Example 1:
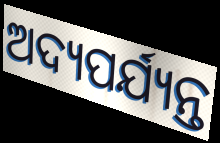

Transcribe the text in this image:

ଅଦ୍ୟପର୍ଯ୍ୟନ୍ତ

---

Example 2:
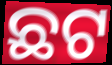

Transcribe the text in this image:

ଛଟ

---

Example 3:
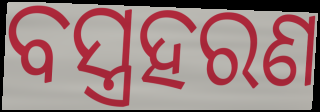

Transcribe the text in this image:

ବସ୍ତ୍ରହରଣ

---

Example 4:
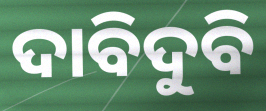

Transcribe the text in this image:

ଦାବିଦୁବି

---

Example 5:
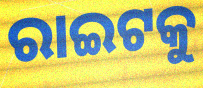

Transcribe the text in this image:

ରାଇଟକୁ